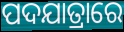
ପଦଯାତ୍ରାରେ